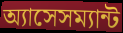
অ্যাসেসম্যান্ট